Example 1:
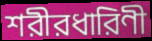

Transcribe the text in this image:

শরীরধারিণী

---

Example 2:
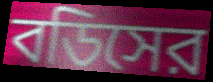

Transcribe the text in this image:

বডিসের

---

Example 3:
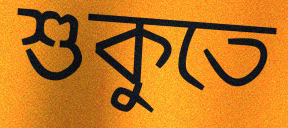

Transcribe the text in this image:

শুকুতে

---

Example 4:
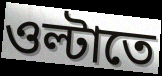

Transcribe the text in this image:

ওল্টাতে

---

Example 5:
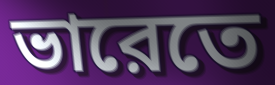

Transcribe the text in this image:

ভারেতে